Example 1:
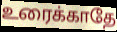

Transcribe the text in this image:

உரைக்காதே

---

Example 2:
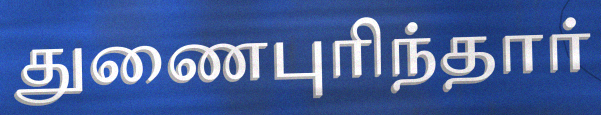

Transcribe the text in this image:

துணைபுரிந்தார்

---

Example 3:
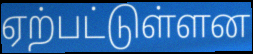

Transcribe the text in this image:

ஏற்பட்டுள்ளன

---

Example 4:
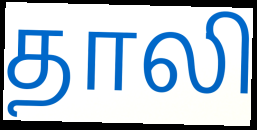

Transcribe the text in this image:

தாலி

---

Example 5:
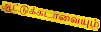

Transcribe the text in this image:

ஆட்டுக்கடாவையும்